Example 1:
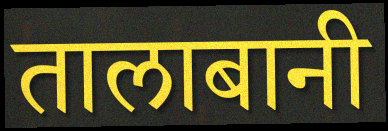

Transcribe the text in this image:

तालाबानी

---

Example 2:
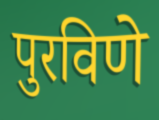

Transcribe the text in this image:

पुरविणे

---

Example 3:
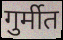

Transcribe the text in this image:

गुर्मीत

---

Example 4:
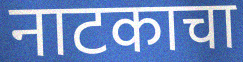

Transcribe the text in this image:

नाटकाचा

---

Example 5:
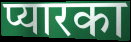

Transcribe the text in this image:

प्यारका